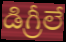
డిగ్రీలే